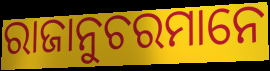
ରାଜାନୁଚରମାନେ